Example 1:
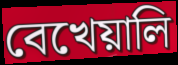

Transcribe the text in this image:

বেখেয়ালি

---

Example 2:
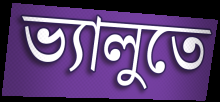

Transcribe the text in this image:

ভ্যালুতে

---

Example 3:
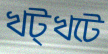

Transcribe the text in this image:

খট্‌খটে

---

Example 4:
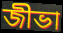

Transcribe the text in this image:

জীভা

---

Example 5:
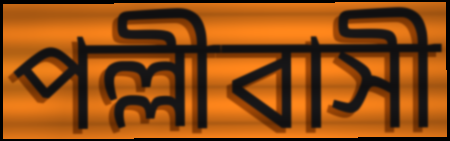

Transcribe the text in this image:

পল্লীবাসী